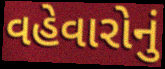
વહેવારોનું